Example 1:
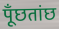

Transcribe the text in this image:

पूँछतांछ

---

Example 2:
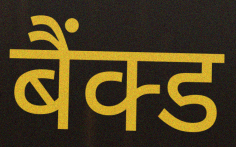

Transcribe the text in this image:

बैंक्ड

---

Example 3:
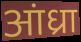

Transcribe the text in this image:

आंध्रा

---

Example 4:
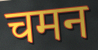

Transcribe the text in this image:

चमन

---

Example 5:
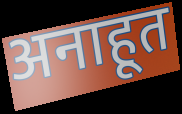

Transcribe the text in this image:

अनाहूत